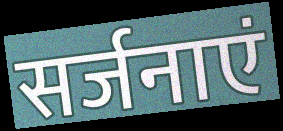
सर्जनाएं